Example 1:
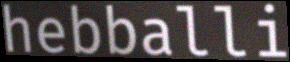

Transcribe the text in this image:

hebballi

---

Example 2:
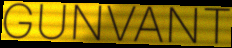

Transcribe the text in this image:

GUNVANT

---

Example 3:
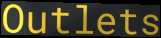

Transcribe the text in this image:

Outlets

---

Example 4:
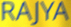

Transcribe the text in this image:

RAJYA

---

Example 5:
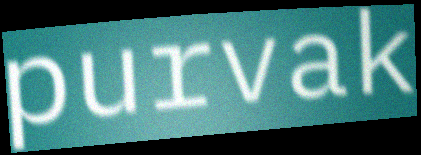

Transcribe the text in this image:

purvak